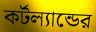
কর্টল্যান্ডের